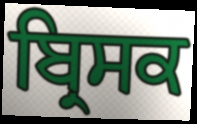
ਬ੍ਰਿਸਕ